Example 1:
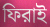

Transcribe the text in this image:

ফিরাই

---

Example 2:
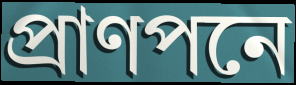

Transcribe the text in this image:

প্রাণপনে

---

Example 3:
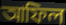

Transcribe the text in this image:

আফিল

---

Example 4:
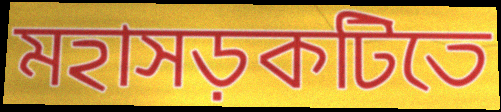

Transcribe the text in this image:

মহাসড়কটিতে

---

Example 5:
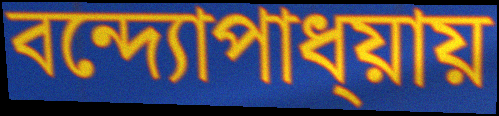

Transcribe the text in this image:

বন্দ্যোপাধ্য়ায়